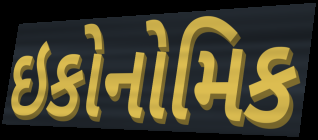
ઇકોનોમિક